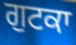
ਗੁਟਕਾ